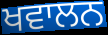
ਖਵਾਲਨ